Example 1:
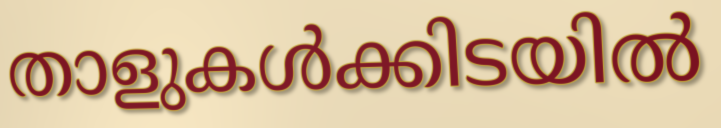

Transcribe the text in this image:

താളുകൾക്കിടയിൽ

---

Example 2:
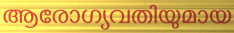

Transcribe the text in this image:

ആരോഗ്യവതിയുമായ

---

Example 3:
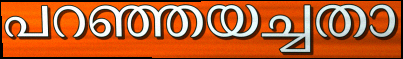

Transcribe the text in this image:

പറഞ്ഞയച്ചതാ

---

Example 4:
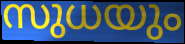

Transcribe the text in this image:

സുധയും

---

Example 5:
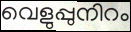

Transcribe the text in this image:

വെളുപ്പുനിറം